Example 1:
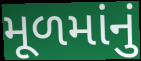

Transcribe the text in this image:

મૂળમાંનું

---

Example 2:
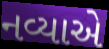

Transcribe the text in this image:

નવ્યાએ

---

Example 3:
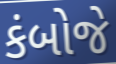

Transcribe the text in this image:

કંબોજે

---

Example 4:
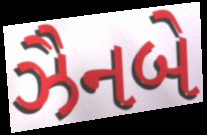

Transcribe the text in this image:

ઝૈનબે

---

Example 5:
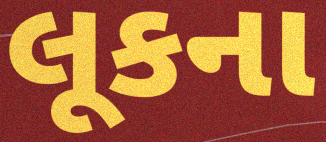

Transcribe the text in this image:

લૂકના